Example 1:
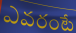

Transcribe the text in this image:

ఎవరంటే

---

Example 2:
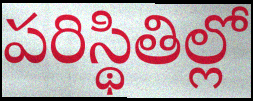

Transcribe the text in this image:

పరిస్థితిల్లో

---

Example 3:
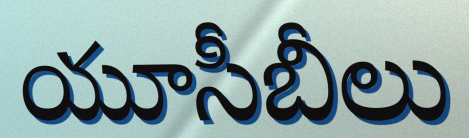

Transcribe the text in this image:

యూసీబీలు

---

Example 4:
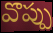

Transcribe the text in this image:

వొప్పు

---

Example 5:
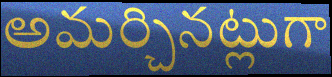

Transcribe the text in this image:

అమర్చినట్లుగా